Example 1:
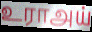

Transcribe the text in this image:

உராஅய்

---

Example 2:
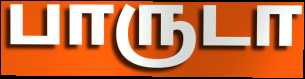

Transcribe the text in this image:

பாருடா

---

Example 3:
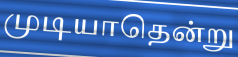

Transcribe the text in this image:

முடியாதென்று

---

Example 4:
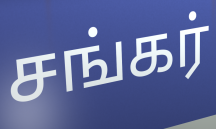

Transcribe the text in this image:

சங்கர்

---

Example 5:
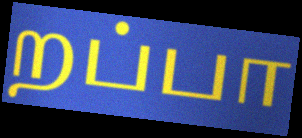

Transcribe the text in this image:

றப்பா